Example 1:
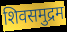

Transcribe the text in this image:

शिवसमुद्रम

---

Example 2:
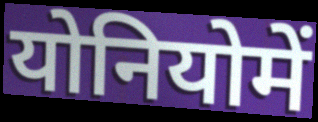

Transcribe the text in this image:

योनियोमें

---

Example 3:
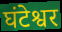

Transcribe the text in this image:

घंटेश्वर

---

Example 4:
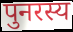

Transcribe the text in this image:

पुनरस्य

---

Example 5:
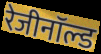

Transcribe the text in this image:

रेजीनॉल्ड